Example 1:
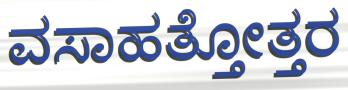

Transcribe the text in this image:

ವಸಾಹತ್ತೋತ್ತರ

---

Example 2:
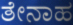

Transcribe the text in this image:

ತೇನಾಹ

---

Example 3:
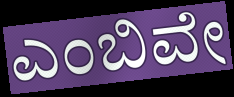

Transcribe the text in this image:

ಎಂಬಿವೇ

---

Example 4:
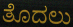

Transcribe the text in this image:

ತೊದಲು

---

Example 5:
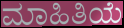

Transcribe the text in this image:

ಮಾಹಿತಿಯೆ